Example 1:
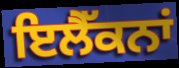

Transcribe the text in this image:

ਇਲੈੱਕਨਾਂ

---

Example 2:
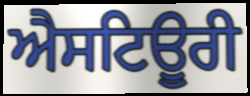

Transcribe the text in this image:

ਐਸਟਿਊਰੀ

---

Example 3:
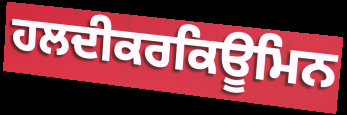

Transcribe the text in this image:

ਹਲਦੀਕਰਕਿਊਮਿਨ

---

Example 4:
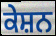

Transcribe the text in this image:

ਕੇਸ਼ਨ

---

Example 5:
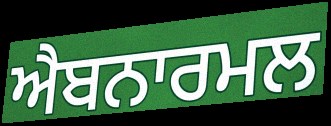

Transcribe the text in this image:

ਐਬਨਾਰਮਲ